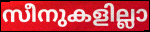
സീനുകളില്ലാ